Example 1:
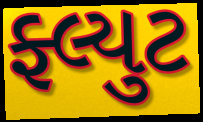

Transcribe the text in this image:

ફ્લ્યુટ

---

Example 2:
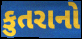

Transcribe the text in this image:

કુતરાનો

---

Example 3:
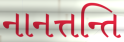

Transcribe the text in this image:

નાનત્તન્તિ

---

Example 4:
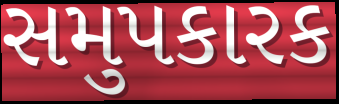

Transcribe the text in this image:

સમુપકારક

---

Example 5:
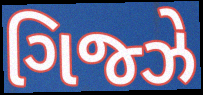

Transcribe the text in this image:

ગિજ્ઝે